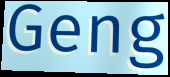
Geng